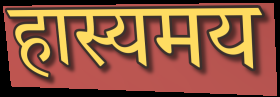
हास्यमय